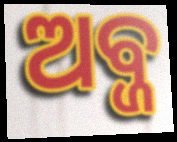
ଅବ୍ଜ